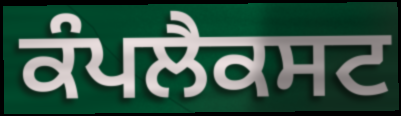
ਕੰਪਲੈਕਸਟ